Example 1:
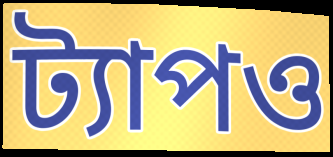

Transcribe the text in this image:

ট্যাপও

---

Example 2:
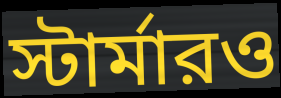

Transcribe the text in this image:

স্টার্মারও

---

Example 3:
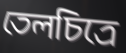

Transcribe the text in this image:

তেলচিত্রে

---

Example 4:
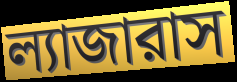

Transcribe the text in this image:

ল্যাজারাস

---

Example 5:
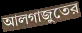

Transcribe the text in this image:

আলগাজুতের